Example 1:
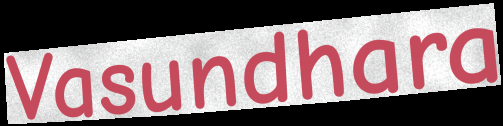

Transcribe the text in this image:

Vasundhara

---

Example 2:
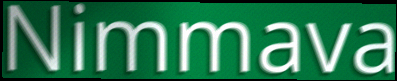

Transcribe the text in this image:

Nimmava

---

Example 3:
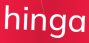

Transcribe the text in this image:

hinga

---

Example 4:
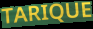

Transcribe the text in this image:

TARIQUE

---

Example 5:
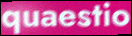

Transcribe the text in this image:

quaestio